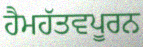
ਹੈਮਹੱਤਵਪੂਰਨ